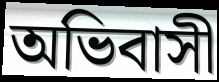
অভিবাসী